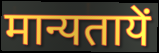
मान्यतायें